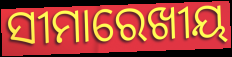
ସୀମାରେଖୀୟ